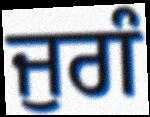
ਜੁਗੰ